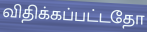
விதிக்கப்பட்டதோ